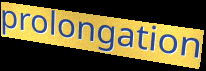
prolongation